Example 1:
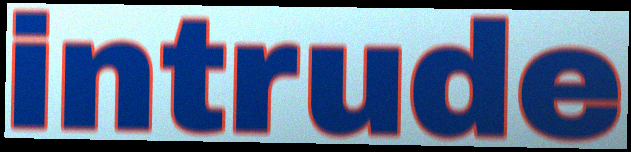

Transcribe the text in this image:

intrude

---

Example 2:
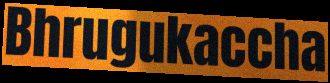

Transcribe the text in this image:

Bhrugukaccha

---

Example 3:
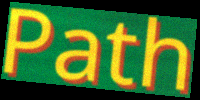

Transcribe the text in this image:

Path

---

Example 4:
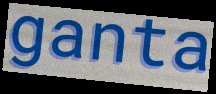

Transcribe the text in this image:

ganta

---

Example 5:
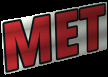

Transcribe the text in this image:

MET